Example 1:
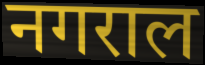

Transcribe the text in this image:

नगराल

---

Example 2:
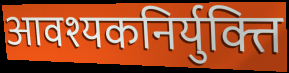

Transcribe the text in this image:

आवश्यकनिर्युक्ति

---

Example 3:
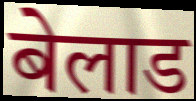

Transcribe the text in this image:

बेलाड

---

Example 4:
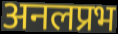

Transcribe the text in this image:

अनलप्रभ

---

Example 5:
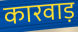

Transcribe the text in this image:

कारवाड़